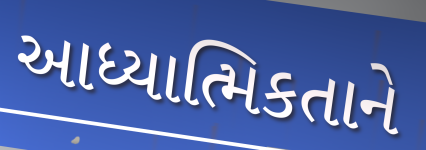
આધ્યાત્મિકતાને